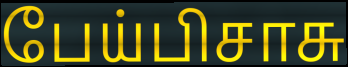
பேய்பிசாசு